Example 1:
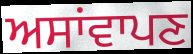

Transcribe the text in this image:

ਅਸਾਂਵਾਪਣ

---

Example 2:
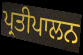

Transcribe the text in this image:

ਪ੍ਰਤੀਪਾਲਨ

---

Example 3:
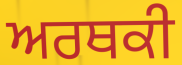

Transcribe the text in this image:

ਅਰਥਕੀ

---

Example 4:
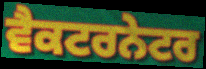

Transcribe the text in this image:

ਵੈਕਟਰਨੇਟਰ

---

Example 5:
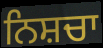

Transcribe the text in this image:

ਨਿਸ਼ਚਾ